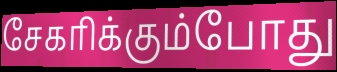
சேகரிக்கும்போது